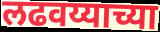
लढवय्याच्या